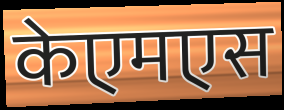
केएमएस